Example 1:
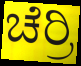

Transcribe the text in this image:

ಚೆರ‍್ರಿ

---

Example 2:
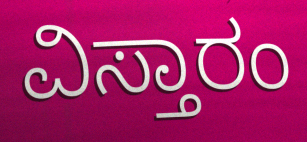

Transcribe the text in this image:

ವಿಸ್ತಾರಂ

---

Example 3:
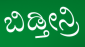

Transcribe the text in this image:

ಬಿಡ್ತೀನ್ರಿ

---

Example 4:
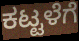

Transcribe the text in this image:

ಕಟ್ಟಳೆಗೆ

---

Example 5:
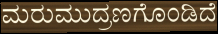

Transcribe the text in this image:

ಮರುಮುದ್ರಣಗೊಂಡಿದೆ